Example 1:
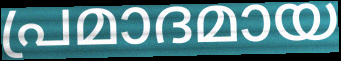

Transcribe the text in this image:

പ്രമാദമായ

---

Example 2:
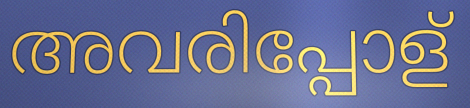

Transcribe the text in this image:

അവരിപ്പോള്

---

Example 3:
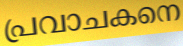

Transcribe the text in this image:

പ്രവാചകനെ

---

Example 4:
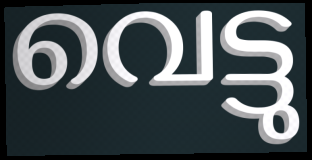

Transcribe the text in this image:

വെട്ടു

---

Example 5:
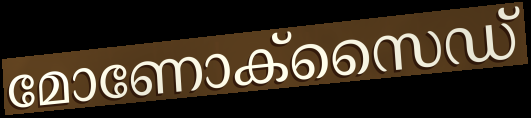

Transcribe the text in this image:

മോണോക്സൈഡ്